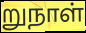
றுநாள்